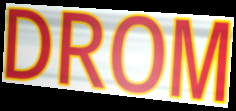
DROM